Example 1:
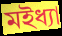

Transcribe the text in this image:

মইধ্যা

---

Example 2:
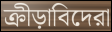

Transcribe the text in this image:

ক্রীড়াবিদেরা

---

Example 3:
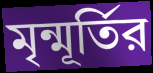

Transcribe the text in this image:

মৃন্মূর্তির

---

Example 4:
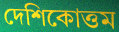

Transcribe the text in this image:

দেশিকোত্তম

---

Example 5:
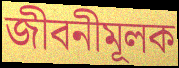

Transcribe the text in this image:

জীবনীমূলক